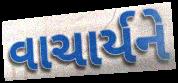
વાચાર્યને